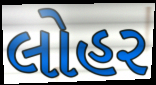
લોહર